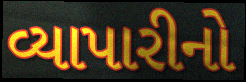
વ્યાપારીનો